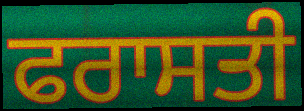
ਫਰਾਸਤੀ